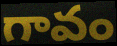
గావం